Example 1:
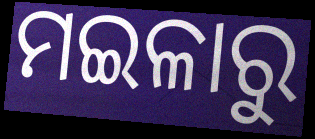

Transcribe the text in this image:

ମଇଳାରୁ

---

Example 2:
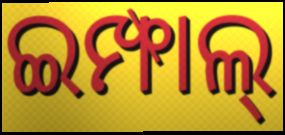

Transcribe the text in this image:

ଇମ୍ଫାଲ୍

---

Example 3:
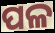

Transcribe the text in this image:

ପଳ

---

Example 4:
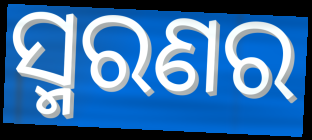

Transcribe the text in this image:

ସ୍ମରଣର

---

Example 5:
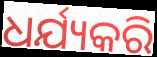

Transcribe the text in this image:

ଧର୍ଯ୍ୟକରି